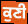
ਕੁਣੀ